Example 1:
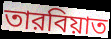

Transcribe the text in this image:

তারবিয়াত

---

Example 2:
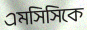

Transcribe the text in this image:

এমসিসিকে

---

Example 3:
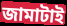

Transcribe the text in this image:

জামাটাই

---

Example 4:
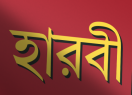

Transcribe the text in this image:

হারবী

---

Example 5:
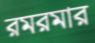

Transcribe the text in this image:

রমরমার